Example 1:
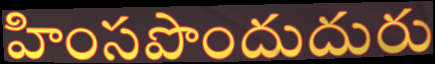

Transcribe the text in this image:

హింసపొందుదురు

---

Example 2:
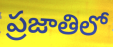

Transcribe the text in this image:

ప్రజాతిలో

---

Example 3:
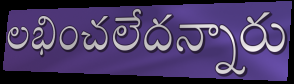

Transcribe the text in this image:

లభించలేదన్నారు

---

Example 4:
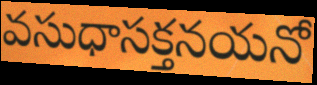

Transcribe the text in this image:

వసుధాసక్తనయనో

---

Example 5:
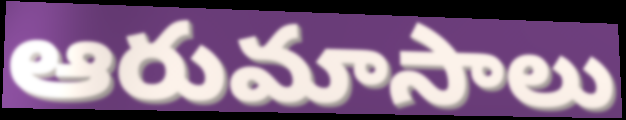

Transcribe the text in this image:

ఆరుమాసాలు